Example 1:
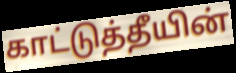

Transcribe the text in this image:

காட்டுத்தீயின்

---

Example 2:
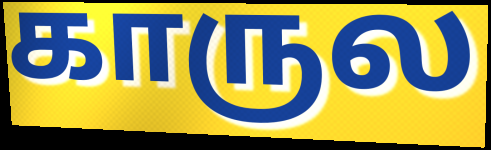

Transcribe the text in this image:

காருல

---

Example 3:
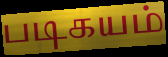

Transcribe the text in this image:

படிகயம்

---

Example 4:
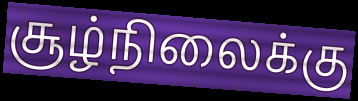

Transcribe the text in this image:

சூழ்நிலைக்கு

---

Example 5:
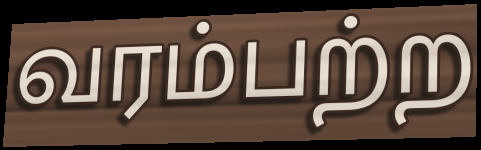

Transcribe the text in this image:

வரம்பற்ற